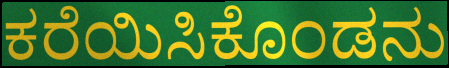
ಕರೆಯಿಸಿಕೊಂಡನು